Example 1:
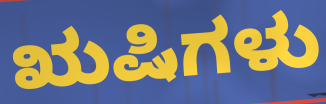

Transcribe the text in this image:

ಋಷಿಗಳು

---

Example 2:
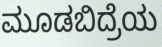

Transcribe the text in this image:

ಮೂಡಬಿದ್ರೆಯ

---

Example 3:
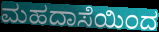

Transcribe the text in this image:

ಮಹದಾಸೆಯಿಂದ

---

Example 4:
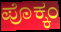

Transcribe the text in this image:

ಪೊಕ್ಕಂ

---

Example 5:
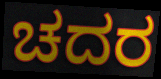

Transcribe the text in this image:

ಚದರ